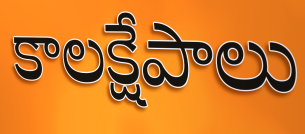
కాలక్షేపాలు